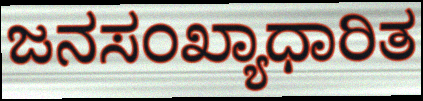
ಜನಸಂಖ್ಯಾಧಾರಿತ